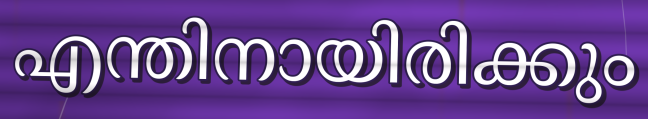
എന്തിനായിരിക്കും